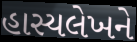
હાસ્યલેખને